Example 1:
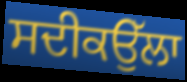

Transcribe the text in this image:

ਸਦੀਕਉੱਲਾ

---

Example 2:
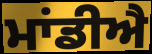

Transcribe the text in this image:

ਮਾਂਡੀਐ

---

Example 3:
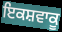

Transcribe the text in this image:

ਇਕਸ਼ਵਾਕੂ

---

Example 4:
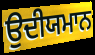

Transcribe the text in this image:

ਉਦੀਯਮਾਨ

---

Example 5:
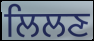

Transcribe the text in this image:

ਲਿਲਣ